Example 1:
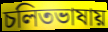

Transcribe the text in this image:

চলিতভাষায়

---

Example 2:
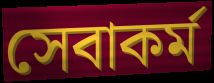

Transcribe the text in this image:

সেবাকর্ম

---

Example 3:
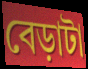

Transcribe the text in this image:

বেড়াটা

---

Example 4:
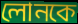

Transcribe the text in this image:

লোনকে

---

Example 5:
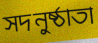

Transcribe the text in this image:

সদনুষ্ঠাতা